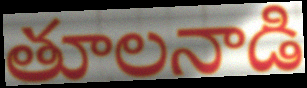
తూలనాడి